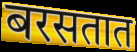
बरसतात